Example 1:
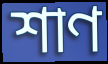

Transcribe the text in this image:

শাণ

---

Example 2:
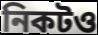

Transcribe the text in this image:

নিকটও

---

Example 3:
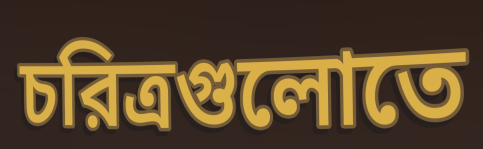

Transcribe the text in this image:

চরিত্রগুলোতে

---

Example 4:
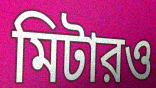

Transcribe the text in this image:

মিটারও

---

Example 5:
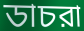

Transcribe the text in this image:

ডাচরা